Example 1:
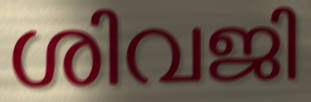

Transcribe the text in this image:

ശിവജി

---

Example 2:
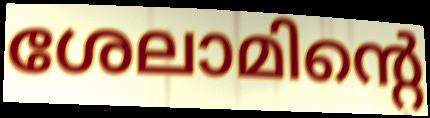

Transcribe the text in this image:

ശേലാമിന്റെ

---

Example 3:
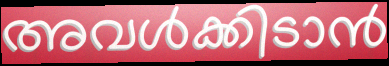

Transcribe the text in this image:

അവൾക്കിടാൻ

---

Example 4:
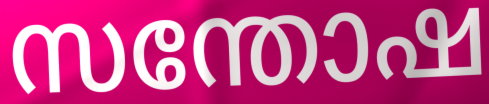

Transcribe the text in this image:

സന്തോഷ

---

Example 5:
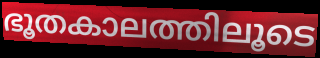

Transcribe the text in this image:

ഭൂതകാലത്തിലൂടെ